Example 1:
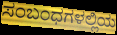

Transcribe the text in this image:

ಸಂಬಂಧಗಳಲ್ಲಿಯ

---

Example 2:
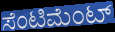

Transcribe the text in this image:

ಸೆಂಟಿಮೆಂಟ್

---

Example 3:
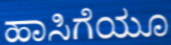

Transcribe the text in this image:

ಹಾಸಿಗೆಯೂ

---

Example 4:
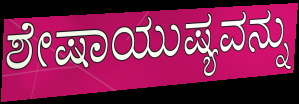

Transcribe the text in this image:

ಶೇಷಾಯುಷ್ಯವನ್ನು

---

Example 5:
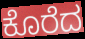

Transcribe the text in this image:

ಕೊರೆದ